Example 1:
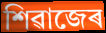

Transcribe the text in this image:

শিৱাজেৰ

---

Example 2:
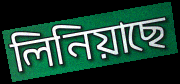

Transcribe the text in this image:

লিনিয়াছে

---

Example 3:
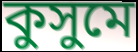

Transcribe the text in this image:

কুসুমে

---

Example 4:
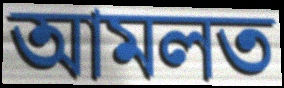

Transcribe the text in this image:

আমলত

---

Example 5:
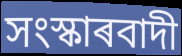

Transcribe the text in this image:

সংস্কাৰবাদী